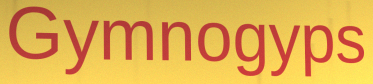
Gymnogyps